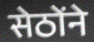
सेठोंने